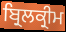
ਬ੍ਰਿਲਕ੍ਰੀਮ